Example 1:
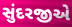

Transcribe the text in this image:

સુંદરજીએ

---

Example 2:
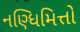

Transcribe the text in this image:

નણ્ધિમિત્તો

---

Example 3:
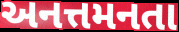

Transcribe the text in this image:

અનત્તમનતા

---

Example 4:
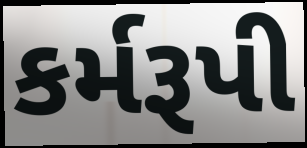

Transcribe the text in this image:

કર્મરૂપી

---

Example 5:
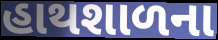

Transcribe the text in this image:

હાથશાળના